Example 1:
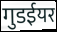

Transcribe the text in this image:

गुडईयर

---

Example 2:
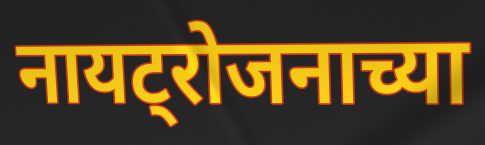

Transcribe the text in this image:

नायट्रोजनाच्या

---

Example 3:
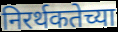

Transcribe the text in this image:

निरर्थकतेच्या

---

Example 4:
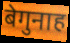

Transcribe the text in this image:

बेगुनाह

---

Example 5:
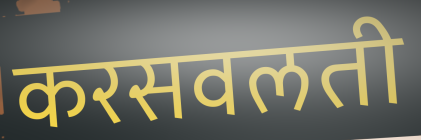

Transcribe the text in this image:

करसवलती